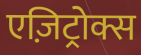
एज़िट्रोक्स